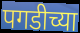
पगडीच्या